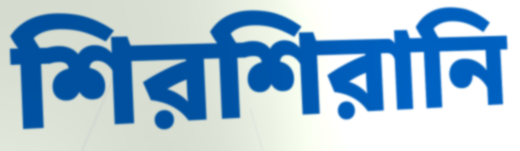
শিরশিরানি